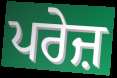
ਪਰੇਜ਼